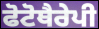
ਫੋਟੋਥੈਰੇਪੀ